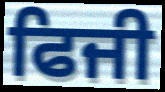
ਫਿਜੀ